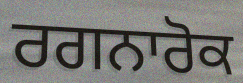
ਰਗਨਾਰੋਕ